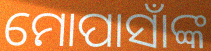
ମୋପାସାଁଙ୍କ